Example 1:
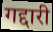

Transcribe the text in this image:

गद्दारी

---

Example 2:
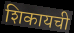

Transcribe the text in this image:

शिकायची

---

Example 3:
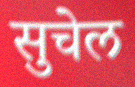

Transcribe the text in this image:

सुचेल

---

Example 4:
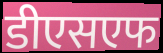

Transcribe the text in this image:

डीएसएफ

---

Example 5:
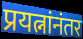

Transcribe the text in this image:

प्रयत्नांनंतर